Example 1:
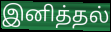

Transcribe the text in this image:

இனித்தல்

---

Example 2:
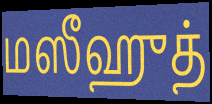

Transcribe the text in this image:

மஸீஹுத்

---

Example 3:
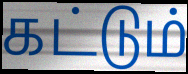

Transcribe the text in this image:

கட்டும்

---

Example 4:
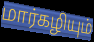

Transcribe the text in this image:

மார்கழியும்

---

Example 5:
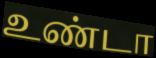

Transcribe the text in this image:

உண்டா